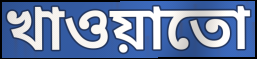
খাওয়াতো